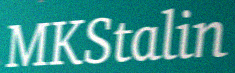
MKStalin